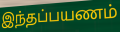
இந்தப்பயணம்